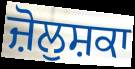
ਜ਼ੋਲੁਸ਼ਕਾ